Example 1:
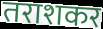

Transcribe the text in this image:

तराशकर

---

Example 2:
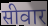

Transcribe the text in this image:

सीवार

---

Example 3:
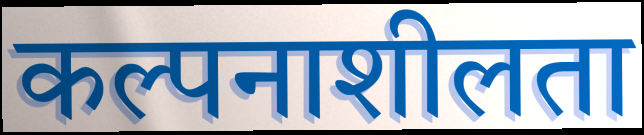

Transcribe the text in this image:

कल्पनाशीलता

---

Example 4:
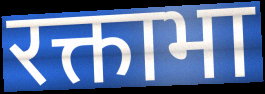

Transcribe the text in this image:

रक्ताभा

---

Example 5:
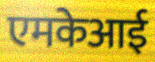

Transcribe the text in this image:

एमकेआई